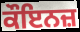
ਕੌਇਨਜ਼